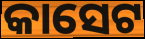
କାସେଟ